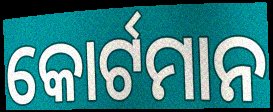
କୋର୍ଟମାନ